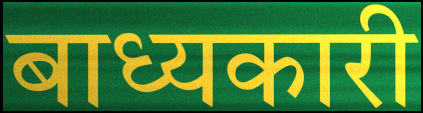
बाध्‍यकारी